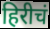
हिरीचं